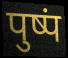
पुष्पं